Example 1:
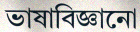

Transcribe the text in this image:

ভাষাবিজ্ঞানো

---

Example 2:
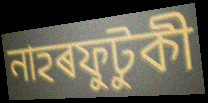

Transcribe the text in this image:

নাহৰফুটুকী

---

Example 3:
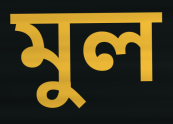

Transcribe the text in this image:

মুল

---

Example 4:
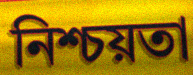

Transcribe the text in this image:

নিশ্চয়তা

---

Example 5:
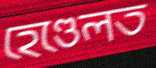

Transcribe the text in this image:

হেণ্ডেলত